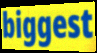
biggest